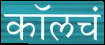
कॉलचं